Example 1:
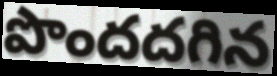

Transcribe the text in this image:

పొందదగిన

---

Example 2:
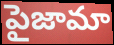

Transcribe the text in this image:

పైజామా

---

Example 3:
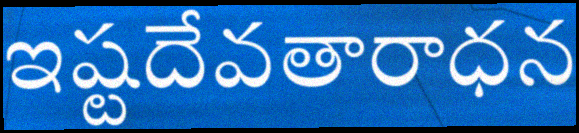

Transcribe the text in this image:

ఇష్టదేవతారాధన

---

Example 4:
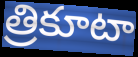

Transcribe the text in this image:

త్రికూటా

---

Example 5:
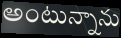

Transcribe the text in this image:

అంటున్నాను